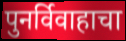
पुनर्विवाहाचा